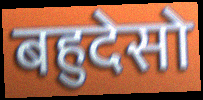
बहुदेसो